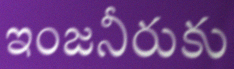
ఇంజనీరుకు